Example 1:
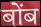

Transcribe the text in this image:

बोंब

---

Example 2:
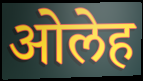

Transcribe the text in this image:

ओलेह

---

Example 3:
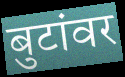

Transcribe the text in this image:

बुटांवर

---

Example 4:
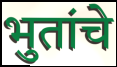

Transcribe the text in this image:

भुतांचे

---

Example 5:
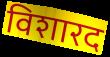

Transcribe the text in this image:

विशारद